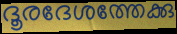
ദൂരദേശത്തേക്കു